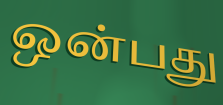
ஒன்பது